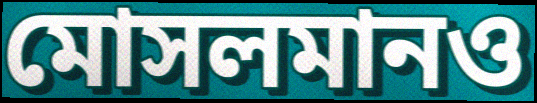
মোসলমানও